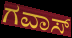
ಗವಾಸ್